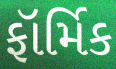
ફૉર્મિક